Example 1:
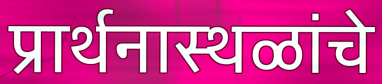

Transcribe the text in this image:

प्रार्थनास्थळांचे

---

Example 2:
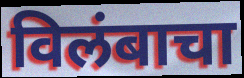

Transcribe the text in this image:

विलंबाचा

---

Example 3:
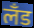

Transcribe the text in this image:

लँड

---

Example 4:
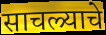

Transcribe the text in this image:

साचल्याचे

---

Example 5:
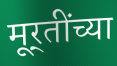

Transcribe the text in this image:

मूर्तींच्या